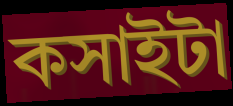
কসাইটা